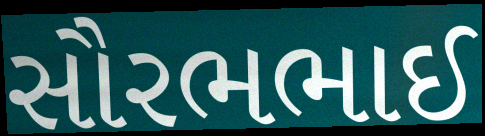
સૌરભભાઈ